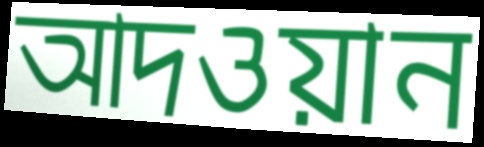
আদওয়ান